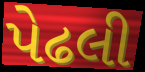
પેઢલી